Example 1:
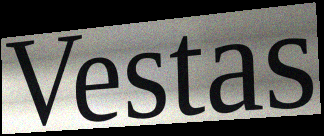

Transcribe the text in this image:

Vestas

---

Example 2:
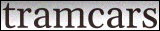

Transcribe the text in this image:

tramcars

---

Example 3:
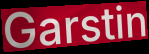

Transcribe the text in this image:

Garstin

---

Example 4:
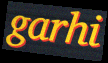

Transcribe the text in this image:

garhi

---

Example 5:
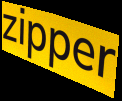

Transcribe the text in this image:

zipper